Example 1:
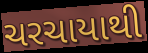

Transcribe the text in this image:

ચરચાયાથી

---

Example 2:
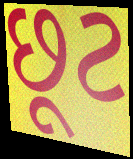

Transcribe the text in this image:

છૂટ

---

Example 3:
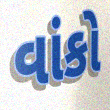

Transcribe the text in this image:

વાંકો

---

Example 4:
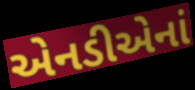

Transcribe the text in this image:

એનડીએનાં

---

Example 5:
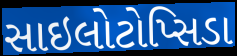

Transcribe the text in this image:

સાઇલોટોપ્સિડા